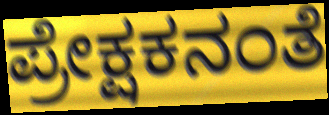
ಪ್ರೇಕ್ಷಕನಂತೆ